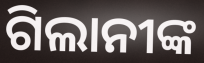
ଗିଲାନୀଙ୍କ